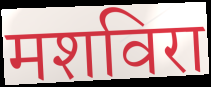
मशविरा